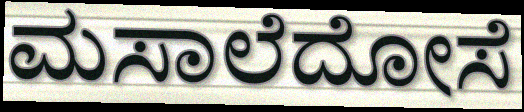
ಮಸಾಲೆದೋಸೆ